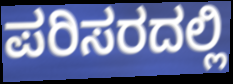
ಪರಿಸರದಲ್ಲಿ